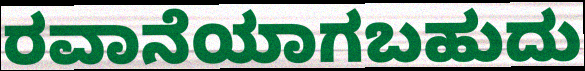
ರವಾನೆಯಾಗಬಹುದು